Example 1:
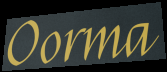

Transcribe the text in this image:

Oorma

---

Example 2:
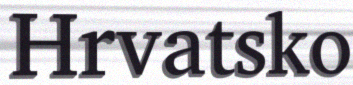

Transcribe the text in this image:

Hrvatsko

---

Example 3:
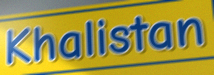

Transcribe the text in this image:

Khalistan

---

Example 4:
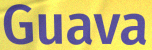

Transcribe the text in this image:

Guava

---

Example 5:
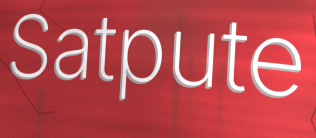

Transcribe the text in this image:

Satpute